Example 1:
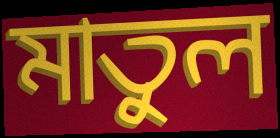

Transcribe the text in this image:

মাতুল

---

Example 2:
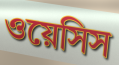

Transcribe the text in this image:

ওয়েসিস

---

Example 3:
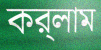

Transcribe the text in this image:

কর্‌লাম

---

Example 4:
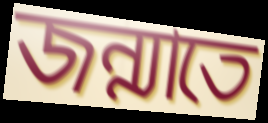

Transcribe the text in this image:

জন্মাতে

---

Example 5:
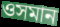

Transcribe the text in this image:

ওসমান